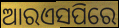
ଆରଏସପିରେ